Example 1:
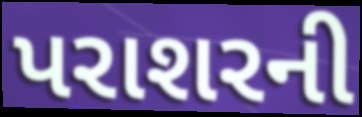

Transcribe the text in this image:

પરાશરની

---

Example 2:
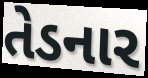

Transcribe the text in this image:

તેડનાર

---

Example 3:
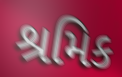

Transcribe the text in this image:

શ્રમિક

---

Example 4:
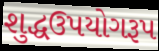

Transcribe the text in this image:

શુદ્ધઉપયોગરૂપ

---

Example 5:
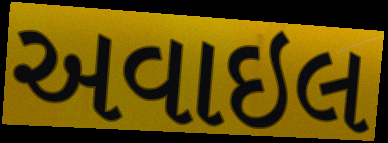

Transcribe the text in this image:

અવાઇલ